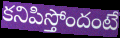
కనిపిస్తోందంటే